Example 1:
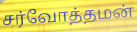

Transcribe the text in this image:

சர்வோத்தமன்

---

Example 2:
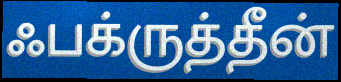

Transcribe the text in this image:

ஃபக்ருத்தீன்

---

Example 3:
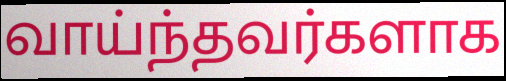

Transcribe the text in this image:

வாய்ந்தவர்களாக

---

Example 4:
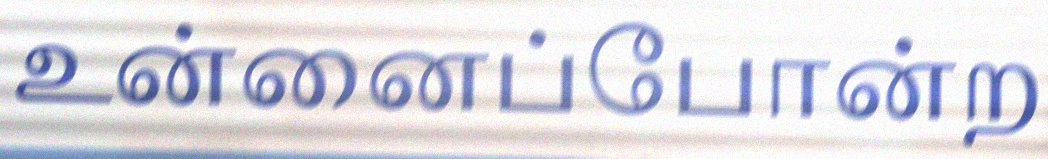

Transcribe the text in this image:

உன்னைப்போன்ற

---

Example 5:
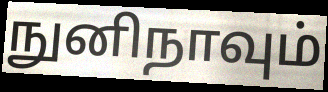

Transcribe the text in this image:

நுனிநாவும்